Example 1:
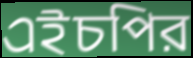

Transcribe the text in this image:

এইচপির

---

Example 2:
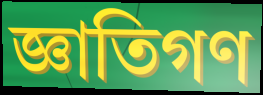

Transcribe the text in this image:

জ্ঞাতিগণ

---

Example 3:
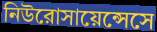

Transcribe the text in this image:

নিউরোসায়েন্সেসে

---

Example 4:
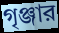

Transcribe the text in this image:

গৃঞ্জার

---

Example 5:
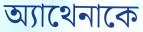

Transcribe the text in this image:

অ্যাথেনাকে